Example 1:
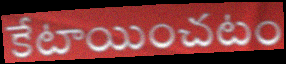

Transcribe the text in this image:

కేటాయించటం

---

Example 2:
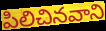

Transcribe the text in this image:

పిలిచినవాని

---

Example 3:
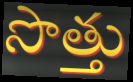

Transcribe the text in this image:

సొత్తు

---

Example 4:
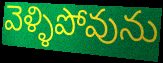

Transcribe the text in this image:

వెళ్ళిపోవును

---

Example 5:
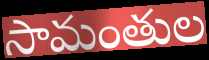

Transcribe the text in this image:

సామంతుల